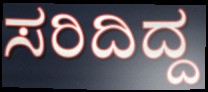
ಸರಿದಿದ್ದ